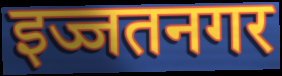
इज्जतनगर